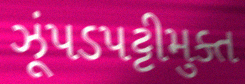
ઝૂંપડપટ્ટીમુક્ત